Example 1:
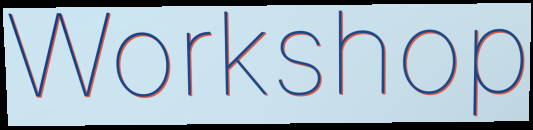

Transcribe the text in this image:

Workshop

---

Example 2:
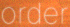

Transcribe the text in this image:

order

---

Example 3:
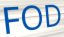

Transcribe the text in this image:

FOD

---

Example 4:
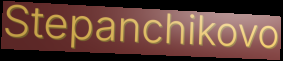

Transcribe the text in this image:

Stepanchikovo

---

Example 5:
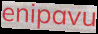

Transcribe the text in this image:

enipavu